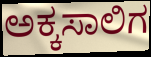
ಅಕ್ಕಸಾಲಿಗ